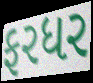
ફરધર